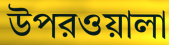
উপরওয়ালা